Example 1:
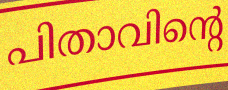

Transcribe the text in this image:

പിതാവിന്റെ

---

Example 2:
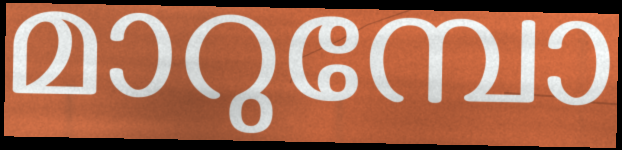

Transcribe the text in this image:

മാറുമ്പോ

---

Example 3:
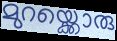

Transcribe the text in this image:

മുറയ്ക്കൊരു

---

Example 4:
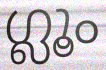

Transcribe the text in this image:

ഗ്ലൂം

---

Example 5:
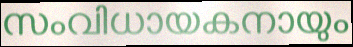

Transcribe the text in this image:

സംവിധായകനായും